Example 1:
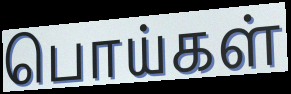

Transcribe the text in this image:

பொய்கள்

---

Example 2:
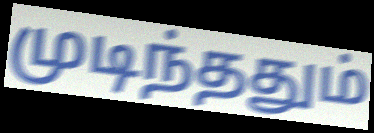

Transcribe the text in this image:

முடிந்ததும்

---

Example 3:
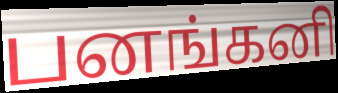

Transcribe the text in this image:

பனங்கனி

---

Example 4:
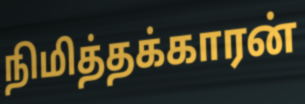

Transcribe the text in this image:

நிமித்தக்காரன்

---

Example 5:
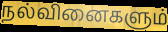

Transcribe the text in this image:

நல்வினைகளும்